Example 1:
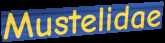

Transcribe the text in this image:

Mustelidae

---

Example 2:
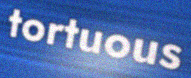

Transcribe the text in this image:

tortuous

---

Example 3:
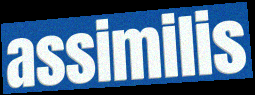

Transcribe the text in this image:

assimilis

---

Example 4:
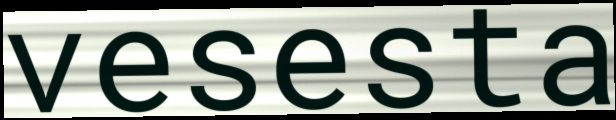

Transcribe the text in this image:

vesesta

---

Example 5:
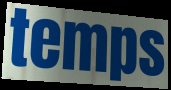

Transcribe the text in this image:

temps